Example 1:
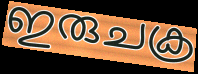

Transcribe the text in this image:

ഇരുചക്ര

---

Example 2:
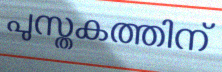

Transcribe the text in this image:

പുസ്തകത്തിന്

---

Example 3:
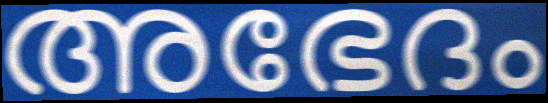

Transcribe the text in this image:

അഭേദം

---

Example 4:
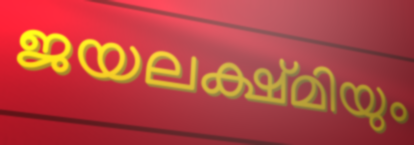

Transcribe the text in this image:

ജയലക്ഷ്മിയും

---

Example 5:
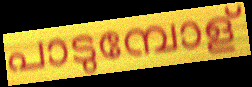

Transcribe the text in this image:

പാടുമ്പോള്